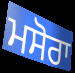
ਮਸੋਰਾ